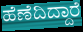
ಹೆಣೆದಿದ್ದಾರೆ